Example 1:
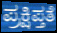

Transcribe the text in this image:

ಪ್ರಕ್ಷಿಪ್ತತೆ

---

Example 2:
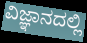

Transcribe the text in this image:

ವಿಜ್ಞಾನದಲ್ಲಿ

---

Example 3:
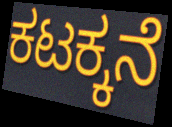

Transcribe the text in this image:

ಕಟಕ್ಕನೆ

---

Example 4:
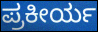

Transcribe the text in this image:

ಪ್ರಕೀರ್ಯ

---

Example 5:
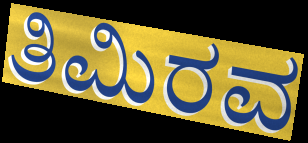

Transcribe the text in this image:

ತಿಮಿರವ